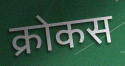
क्रोकस